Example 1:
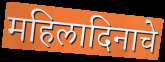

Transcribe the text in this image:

महिलादिनाचे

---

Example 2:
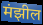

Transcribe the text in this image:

मंझील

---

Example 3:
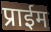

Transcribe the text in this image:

प्राईम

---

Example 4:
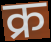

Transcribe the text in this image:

क्र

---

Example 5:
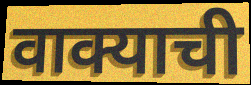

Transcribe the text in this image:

वाक्याची